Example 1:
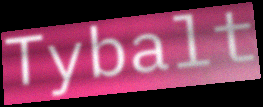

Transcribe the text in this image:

Tybalt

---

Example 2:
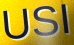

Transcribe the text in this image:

USI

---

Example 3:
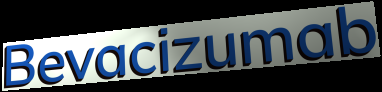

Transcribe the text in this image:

Bevacizumab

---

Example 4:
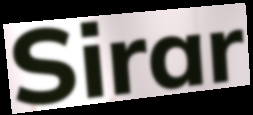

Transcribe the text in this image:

Sirar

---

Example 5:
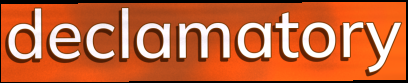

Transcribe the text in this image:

declamatory